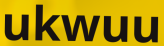
ukwuu